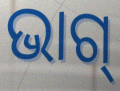
ଭାଗ୍